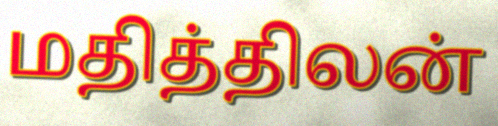
மதித்திலன்